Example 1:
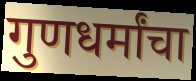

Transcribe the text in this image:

गुणधर्मांचा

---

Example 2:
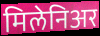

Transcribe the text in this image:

मिलेनिअर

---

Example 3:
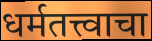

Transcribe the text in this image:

धर्मतत्त्वाचा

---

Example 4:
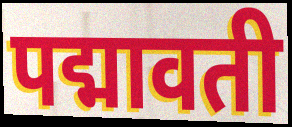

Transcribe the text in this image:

पद्मावती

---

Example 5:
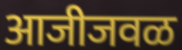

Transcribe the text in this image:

आजीजवळ